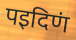
पइदिणं